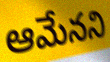
ఆమేనని